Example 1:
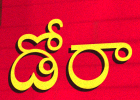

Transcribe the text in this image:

డోరా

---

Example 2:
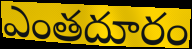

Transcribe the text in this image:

ఎంతదూరం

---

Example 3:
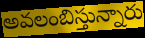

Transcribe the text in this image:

అవలంబిస్తున్నారు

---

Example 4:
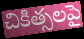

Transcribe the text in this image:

చికిత్సలపై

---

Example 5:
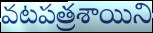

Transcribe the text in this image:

వటపత్రశాయిని